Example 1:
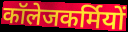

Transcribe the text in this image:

कॉलेजकर्मियों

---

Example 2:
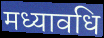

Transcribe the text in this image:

मध्यावधि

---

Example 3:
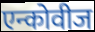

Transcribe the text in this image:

एन्कोवीज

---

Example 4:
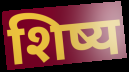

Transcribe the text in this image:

शिष्य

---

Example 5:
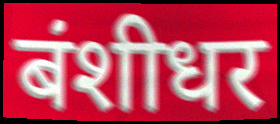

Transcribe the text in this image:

बंशीधर